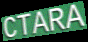
CTARA